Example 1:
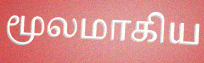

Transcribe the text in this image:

மூலமாகிய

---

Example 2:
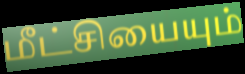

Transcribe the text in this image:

மீட்சியையும்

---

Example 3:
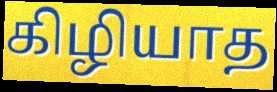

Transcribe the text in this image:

கிழியாத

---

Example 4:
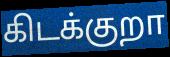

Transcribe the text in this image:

கிடக்குறா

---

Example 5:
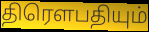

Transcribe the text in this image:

திரெளபதியும்